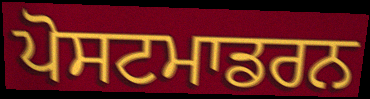
ਪੋਸਟਮਾਡਰਨ